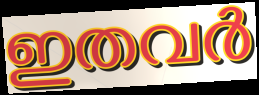
ഇതവർ